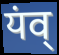
यंव्